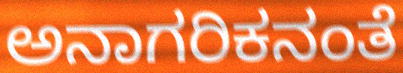
ಅನಾಗರಿಕನಂತೆ